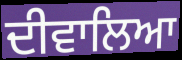
ਦੀਵਾਲਿਆ